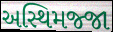
અસ્થિમજ્જા